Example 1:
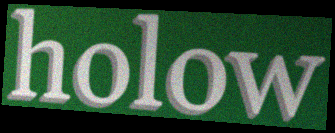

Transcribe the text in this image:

holow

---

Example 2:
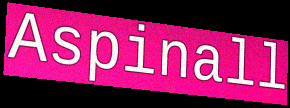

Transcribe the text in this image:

Aspinall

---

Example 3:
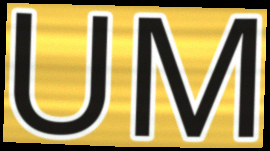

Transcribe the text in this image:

UM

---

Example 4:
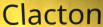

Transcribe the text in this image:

Clacton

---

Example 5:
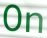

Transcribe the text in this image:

On